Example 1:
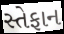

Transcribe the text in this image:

સ્તેફાન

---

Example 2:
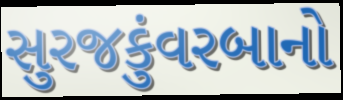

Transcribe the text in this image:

સુરજકુંવરબાનો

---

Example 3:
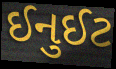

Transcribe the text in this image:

ઈનુઈટ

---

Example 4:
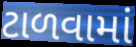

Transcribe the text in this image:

ટાળવામાં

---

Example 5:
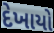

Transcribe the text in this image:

દેખાયો